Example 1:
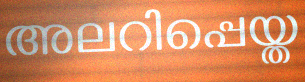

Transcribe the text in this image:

അലറിപ്പെയ്ത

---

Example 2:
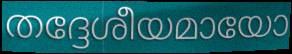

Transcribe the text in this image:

തദ്ദേശീയമായോ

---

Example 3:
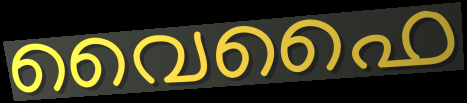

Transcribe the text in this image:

വൈഫൈ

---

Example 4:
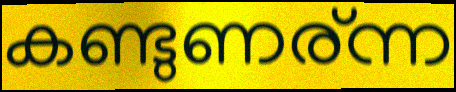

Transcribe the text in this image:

കണ്ടുണര്ന്ന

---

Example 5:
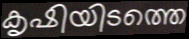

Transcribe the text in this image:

കൃഷിയിടത്തെ